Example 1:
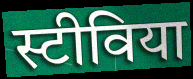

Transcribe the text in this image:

स्टीविया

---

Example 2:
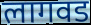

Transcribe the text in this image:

लागवड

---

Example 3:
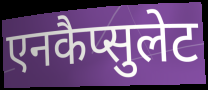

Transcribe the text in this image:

एनकैप्सुलेट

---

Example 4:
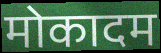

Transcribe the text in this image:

मोकादम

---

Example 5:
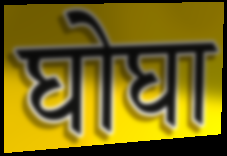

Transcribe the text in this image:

घोघा